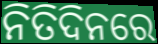
ନିତିଦିନରେ